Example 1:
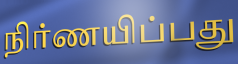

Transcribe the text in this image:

நிர்ணயிப்பது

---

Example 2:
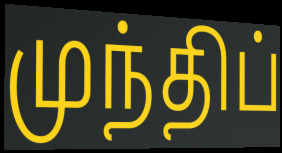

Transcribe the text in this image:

முந்திப்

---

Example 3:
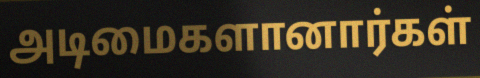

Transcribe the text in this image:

அடிமைகளானார்கள்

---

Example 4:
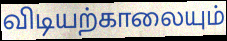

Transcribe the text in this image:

விடியற்காலையும்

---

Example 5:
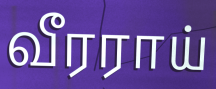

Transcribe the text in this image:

வீரராய்